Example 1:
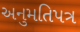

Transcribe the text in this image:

અનુમતિપત્ર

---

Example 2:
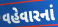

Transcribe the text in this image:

વહેવારનાં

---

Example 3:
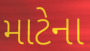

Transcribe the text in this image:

માટેના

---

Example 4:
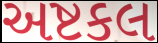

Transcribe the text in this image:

અષ્ટકલ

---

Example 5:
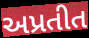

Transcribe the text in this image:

અપ્રતીત